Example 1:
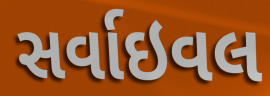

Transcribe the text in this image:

સર્વાઇવલ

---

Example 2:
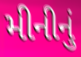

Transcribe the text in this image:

મીનીનું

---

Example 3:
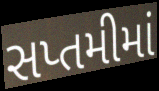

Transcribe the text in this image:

સપ્તમીમાં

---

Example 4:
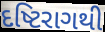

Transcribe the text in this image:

દષ્ટિરાગથી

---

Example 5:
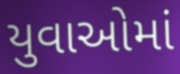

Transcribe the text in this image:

યુવાઓમાં